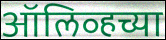
ऑलिव्हच्या